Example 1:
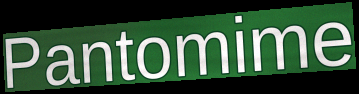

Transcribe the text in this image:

Pantomime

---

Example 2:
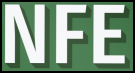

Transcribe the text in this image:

NFE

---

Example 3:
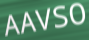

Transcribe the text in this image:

AAVSO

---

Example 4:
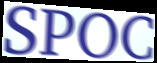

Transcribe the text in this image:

SPOC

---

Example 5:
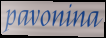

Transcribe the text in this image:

pavonina